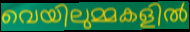
വെയിലുമ്മകളിൽ